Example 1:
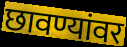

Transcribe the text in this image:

छावण्यांवर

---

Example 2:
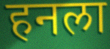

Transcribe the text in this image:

हनला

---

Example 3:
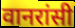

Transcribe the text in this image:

वानरांसी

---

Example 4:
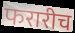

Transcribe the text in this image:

फरारीच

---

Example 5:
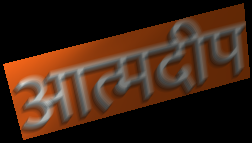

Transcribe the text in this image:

आत्मदीप